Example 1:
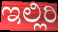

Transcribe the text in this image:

ಇಲ್ಲಿರಿ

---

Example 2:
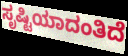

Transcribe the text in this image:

ಸೃಷ್ಟಿಯಾದಂತಿದೆ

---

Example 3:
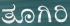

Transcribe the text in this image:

ತೂಗಿರಿ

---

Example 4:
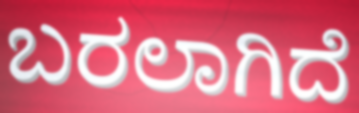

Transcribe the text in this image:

ಬರಲಾಗಿದೆ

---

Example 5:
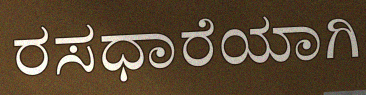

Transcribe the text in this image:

ರಸಧಾರೆಯಾಗಿ